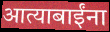
आत्याबाईंना